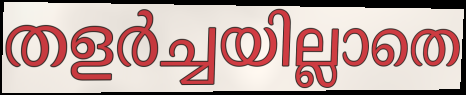
തളർച്ചയില്ലാതെ